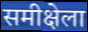
समीक्षेला